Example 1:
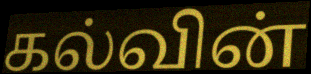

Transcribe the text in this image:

கல்வின்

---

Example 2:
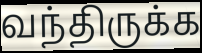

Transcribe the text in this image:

வந்திருக்க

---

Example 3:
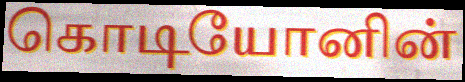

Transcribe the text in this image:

கொடியோனின்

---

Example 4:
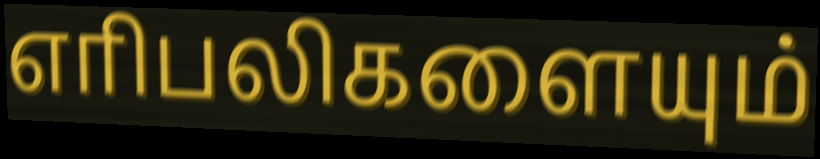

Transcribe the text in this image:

எரிபலிகளையும்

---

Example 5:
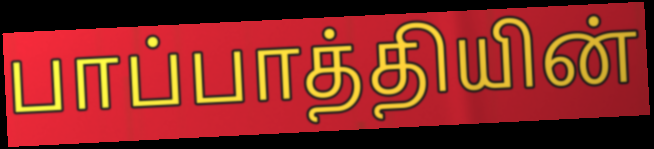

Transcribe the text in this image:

பாப்பாத்தியின்